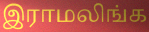
இராமலிங்க